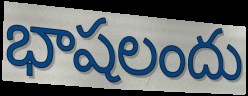
భాషలందు